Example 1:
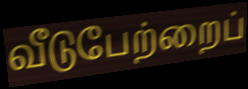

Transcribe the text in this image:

வீடுபேற்றைப்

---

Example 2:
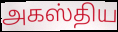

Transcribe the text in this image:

அகஸ்திய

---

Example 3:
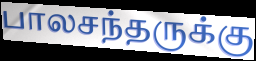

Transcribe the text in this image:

பாலசந்தருக்கு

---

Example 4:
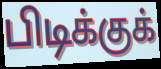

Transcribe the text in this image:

பிடிக்குக்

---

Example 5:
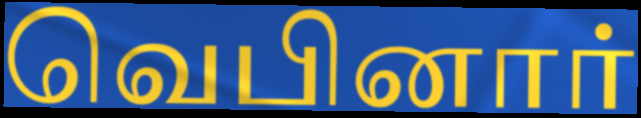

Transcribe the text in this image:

வெபினார்